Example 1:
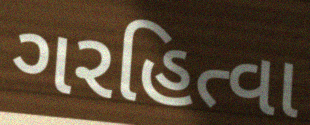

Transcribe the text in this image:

ગરહિત્વા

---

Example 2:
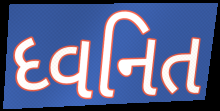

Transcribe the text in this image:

ધ્વનિત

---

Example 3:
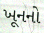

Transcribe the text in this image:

ખૂનનો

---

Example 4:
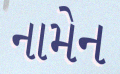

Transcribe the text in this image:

નામેન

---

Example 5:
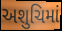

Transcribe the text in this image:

અશુચિમાં